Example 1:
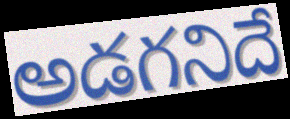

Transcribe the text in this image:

అడగనిదే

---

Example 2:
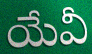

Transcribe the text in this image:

యేవీ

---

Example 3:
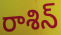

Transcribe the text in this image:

రాశిన్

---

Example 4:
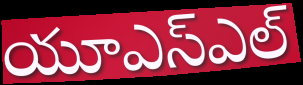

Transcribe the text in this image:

యూఎస్ఎల్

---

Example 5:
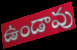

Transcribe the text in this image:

ఉండావు